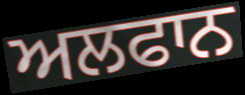
ਅਲਫਾਨ